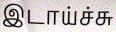
இடாய்ச்சு